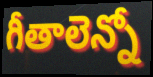
గీతాలెన్నో